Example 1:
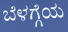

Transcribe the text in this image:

ಬೆಳಗ್ಗೆಯ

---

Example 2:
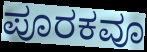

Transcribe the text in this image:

ಪೂರಕವೂ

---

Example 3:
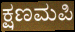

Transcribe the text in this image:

ಕ್ಷಣಮಪಿ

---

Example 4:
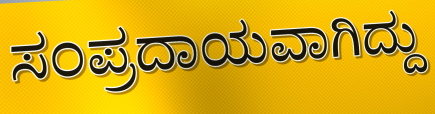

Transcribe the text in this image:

ಸಂಪ್ರದಾಯವಾಗಿದ್ದು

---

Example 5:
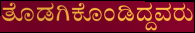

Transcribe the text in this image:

ತೊಡಗಿಕೊಂಡಿದ್ದವರು